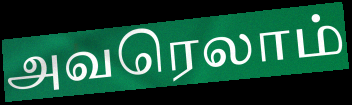
அவரெலாம்